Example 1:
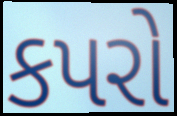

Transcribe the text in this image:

કપરો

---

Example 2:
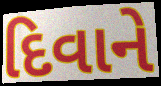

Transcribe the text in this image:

દિવાને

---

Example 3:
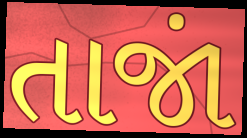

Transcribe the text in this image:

તાજાં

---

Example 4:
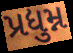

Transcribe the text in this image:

પ્રદ્યુમ્ન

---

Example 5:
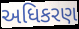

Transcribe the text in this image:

અધિકરણ